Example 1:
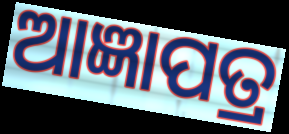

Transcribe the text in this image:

ଆଜ୍ଞାପତ୍ର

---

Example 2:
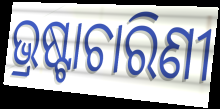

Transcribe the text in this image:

ଭ୍ରଷ୍ଟାଚାରିଣୀ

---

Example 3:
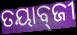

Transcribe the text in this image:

ତୟାବ୍‌ଜୀ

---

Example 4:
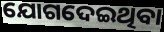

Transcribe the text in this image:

ଯୋଗଦେଇଥିବା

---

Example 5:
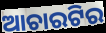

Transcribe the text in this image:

ଆଚାରଟିର